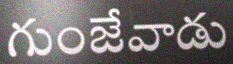
గుంజేవాడు